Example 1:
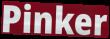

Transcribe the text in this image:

Pinker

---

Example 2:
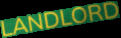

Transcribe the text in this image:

LANDLORD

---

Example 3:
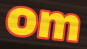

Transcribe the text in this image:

om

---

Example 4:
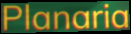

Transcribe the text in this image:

Planaria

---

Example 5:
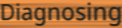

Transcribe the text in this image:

Diagnosing